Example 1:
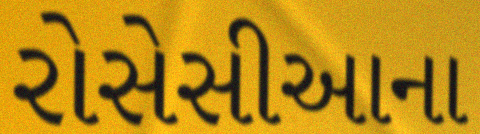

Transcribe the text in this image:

રોસેસીઆના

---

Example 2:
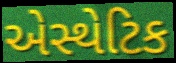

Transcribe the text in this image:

એસ્થેટિક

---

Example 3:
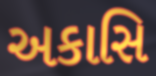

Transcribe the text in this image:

અકાસિ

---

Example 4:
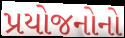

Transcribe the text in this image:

પ્રયોજનોનો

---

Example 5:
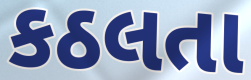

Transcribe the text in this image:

કઠલતા